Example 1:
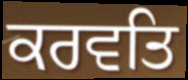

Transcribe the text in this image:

ਕਰਵਤਿ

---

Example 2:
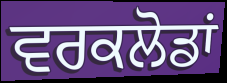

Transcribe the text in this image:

ਵਰਕਲੋਡਾਂ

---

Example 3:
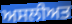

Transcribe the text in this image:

ਅਸਲੀਅਤ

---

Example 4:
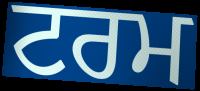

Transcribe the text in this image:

ਟਰਮ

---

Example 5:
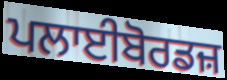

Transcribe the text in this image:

ਪਲਾਈਬੋਰਡਜ਼